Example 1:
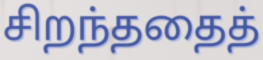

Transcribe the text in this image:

சிறந்ததைத்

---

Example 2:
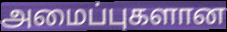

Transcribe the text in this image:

அமைப்புகளான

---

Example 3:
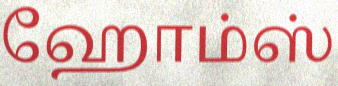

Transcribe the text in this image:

ஹோம்ஸ்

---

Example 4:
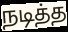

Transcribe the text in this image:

நடித்த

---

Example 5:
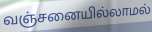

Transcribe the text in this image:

வஞ்சனையில்லாமல்